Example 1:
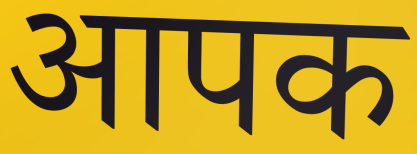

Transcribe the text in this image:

आपक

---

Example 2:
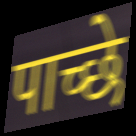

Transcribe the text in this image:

पाच्छे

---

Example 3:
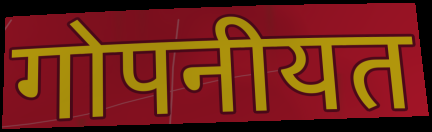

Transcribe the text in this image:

गोपनीयत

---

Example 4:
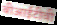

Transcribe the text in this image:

बीआईटीवी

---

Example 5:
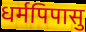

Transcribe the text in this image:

धर्मपिपासु